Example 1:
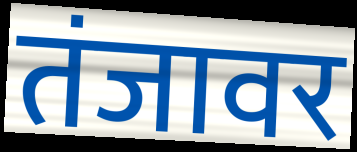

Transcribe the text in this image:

तंजावर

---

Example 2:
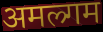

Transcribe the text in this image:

अमल्गम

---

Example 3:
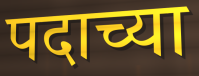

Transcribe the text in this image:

पदाच्या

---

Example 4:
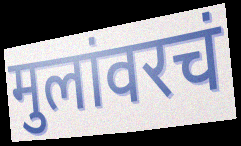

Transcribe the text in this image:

मुलांवरचं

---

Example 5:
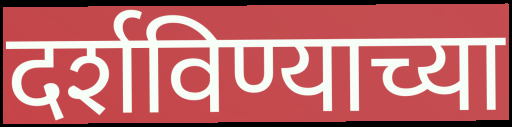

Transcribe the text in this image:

दर्शविण्याच्या